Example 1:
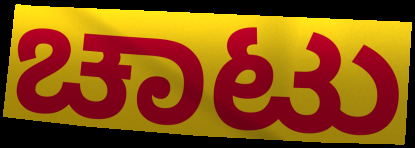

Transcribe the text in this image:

ಚಾಟು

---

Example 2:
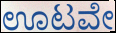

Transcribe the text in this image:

ಊಟವೇ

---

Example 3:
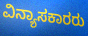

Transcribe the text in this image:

ವಿನ್ಯಾಸಕಾರರು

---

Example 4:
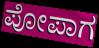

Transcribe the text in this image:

ಪೋಪಾಗ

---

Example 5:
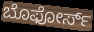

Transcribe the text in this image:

ಬೊಫೋರ್ಸ್